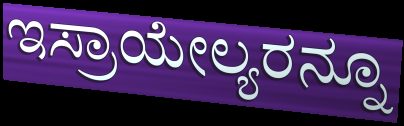
ಇಸ್ರಾಯೇಲ್ಯರನ್ನೂ